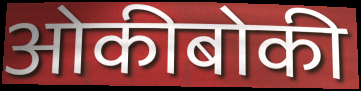
ओकीबोकी